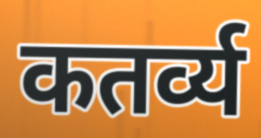
कतर्व्य